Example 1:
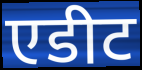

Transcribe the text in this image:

एडीट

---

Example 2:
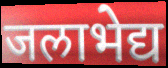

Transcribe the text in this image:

जलाभेद्य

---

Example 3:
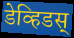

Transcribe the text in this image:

डेव्हिडस्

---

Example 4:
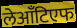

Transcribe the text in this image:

लेआँटिएफ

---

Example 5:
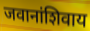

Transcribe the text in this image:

जवानांशिवाय